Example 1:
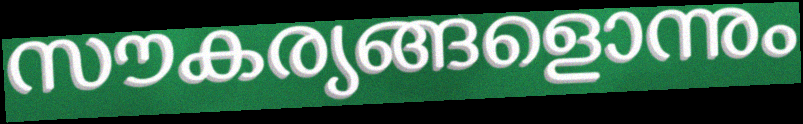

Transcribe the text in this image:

സൗകര്യങ്ങളൊന്നും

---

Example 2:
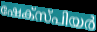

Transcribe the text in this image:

ഷേക്സ്പിയർ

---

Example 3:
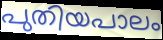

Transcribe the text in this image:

പുതിയപാലം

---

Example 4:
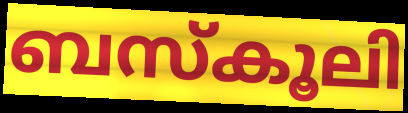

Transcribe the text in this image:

ബസ്കൂലി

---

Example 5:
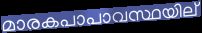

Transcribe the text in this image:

മാരകപാപാവസ്ഥയില്